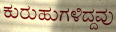
ಕುರುಹುಗಳಿದ್ದವು